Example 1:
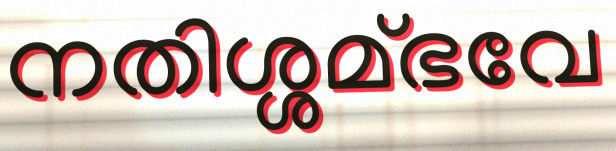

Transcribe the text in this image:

നതിശ്ശമ്ഭവേ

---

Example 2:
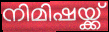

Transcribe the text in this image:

നിമിഷയ്ക്ക്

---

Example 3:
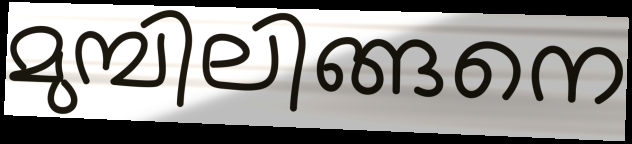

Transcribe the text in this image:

മുമ്പിലിങ്ങനെ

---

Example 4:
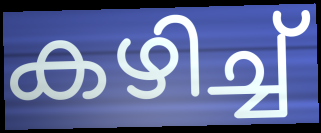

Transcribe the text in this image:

കഴിച്ച്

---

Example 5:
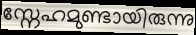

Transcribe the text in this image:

സ്നേഹമുണ്ടായിരുന്നു